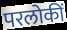
परलोकीं